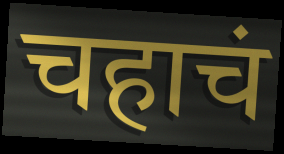
चहाचं